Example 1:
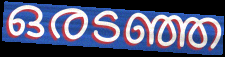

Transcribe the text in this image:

ഒരടഞ്ഞ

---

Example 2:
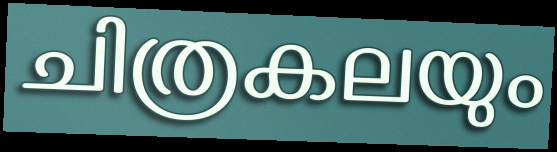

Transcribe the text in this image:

ചിത്രകലയും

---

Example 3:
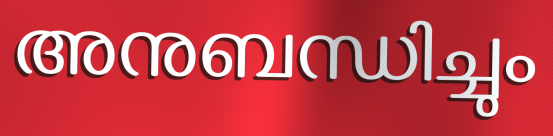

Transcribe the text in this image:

അനുബന്ധിച്ചും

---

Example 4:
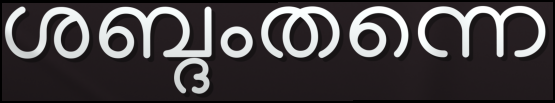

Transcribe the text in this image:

ശബ്ദംതന്നെ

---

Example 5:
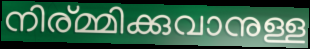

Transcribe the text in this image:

നിര്മ്മിക്കുവാനുള്ള